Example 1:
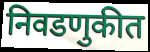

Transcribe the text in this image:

निवडणुकीत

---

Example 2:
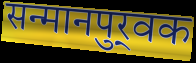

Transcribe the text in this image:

सन्मानपुर्वक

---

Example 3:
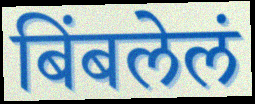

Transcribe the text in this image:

बिंबलेलं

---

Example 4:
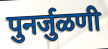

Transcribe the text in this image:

पुनर्जुळणी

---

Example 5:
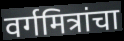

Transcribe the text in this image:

वर्गमित्रांचा